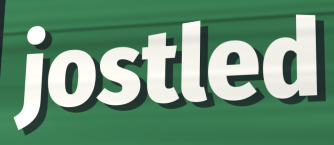
jostled